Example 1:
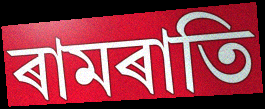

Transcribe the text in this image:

ৰামৰাতি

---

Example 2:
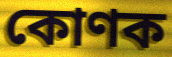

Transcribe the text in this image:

কোণক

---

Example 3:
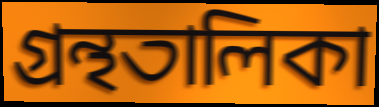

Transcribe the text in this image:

গ্ৰন্থতালিকা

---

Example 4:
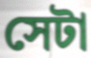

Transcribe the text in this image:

সেটা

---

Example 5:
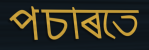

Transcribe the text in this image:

পচাৰতে